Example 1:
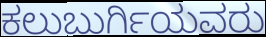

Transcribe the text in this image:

ಕಲುಬುರ್ಗಿಯವರು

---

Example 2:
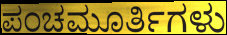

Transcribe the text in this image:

ಪಂಚಮೂರ್ತಿಗಳು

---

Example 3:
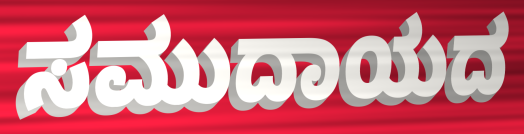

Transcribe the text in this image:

ಸಮುದಾಯದ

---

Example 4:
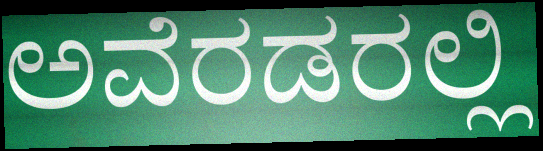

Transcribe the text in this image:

ಅವೆರಡರಲ್ಲಿ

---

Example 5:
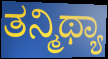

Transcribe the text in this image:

ತನ್ಮಿಥ್ಯಾ